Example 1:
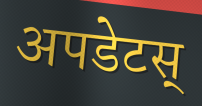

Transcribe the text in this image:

अपडेटस्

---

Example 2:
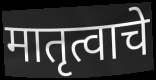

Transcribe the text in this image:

मातृत्वाचे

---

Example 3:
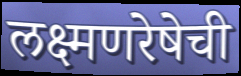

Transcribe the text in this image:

लक्ष्मणरेषेची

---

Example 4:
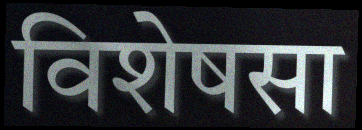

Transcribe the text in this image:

विशेषसा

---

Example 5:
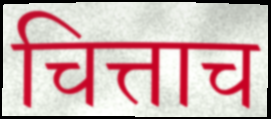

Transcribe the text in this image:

चित्ताच